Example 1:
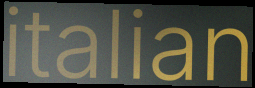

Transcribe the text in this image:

italian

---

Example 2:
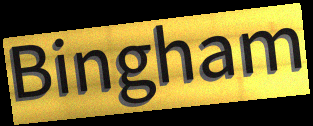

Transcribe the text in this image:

Bingham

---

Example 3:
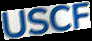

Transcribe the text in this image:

USCF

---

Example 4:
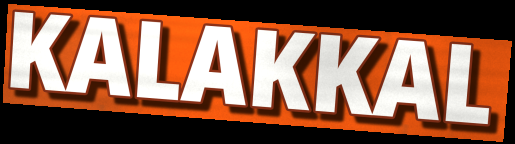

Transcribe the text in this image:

KALAKKAL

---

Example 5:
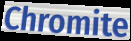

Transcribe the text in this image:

Chromite